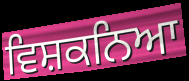
ਵਿਸ਼ਕਨਿਆ